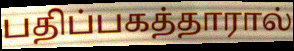
பதிப்பகத்தாரால்